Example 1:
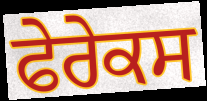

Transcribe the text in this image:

ਫੇਰੇਕਸ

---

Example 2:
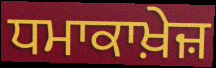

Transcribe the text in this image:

ਧਮਾਕਾਖ਼ੇਜ਼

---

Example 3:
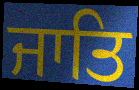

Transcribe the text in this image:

ਜਾਤਿ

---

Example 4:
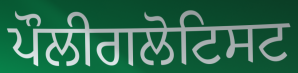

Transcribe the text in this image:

ਪੌਲੀਗਲੋਟਿਸਟ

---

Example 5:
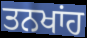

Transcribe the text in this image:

ਤਨਖਾਂਹ